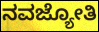
ನವಜ್ಯೋತಿ